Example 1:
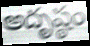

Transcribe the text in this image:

అదృష్ఠం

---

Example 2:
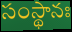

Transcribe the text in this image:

సంస్థానః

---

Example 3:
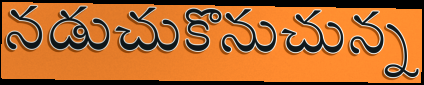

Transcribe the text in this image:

నడుచుకొనుచున్న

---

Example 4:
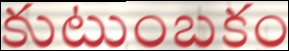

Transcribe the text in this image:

కుటుంబకం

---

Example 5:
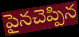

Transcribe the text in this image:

పైనచెప్పిన